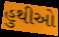
હુથીઓ